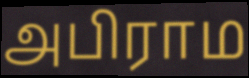
அபிராம